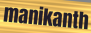
manikanth